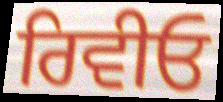
ਰਿਵੀਓ